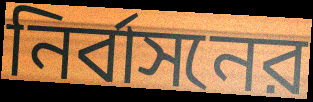
নির্বাসনের